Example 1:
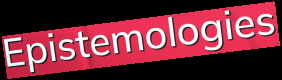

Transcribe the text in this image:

Epistemologies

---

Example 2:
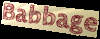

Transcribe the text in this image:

Babbage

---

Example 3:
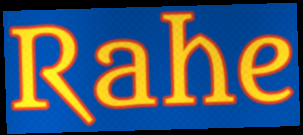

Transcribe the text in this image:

Rahe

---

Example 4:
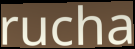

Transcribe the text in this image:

rucha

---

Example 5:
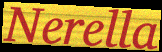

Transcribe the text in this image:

Nerella